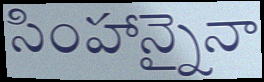
సింహాన్నైనా